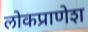
लोकप्राणेश